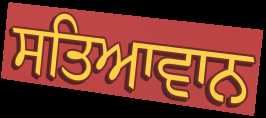
ਸਤਿਆਵਾਨ